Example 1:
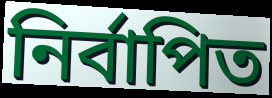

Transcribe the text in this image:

নিৰ্বাপিত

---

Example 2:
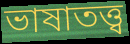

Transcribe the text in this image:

ভাষাতত্ত্ব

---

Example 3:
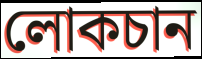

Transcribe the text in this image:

লোকচান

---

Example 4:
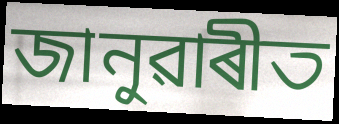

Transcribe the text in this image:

জানুৱাৰীত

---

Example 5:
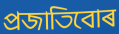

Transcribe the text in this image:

প্ৰজাতিবোৰ